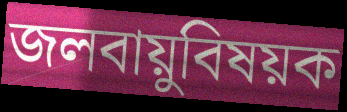
জলবায়ুবিষয়ক